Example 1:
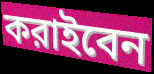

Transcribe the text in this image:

করাইবেন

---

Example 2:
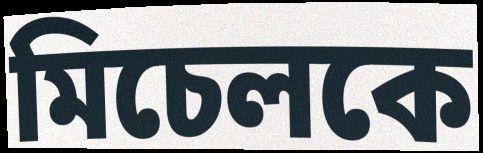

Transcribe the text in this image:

মিচেলকে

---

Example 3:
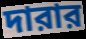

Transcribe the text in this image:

দারার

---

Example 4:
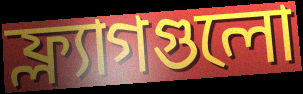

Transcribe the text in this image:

ফ্ল্যাগগুলো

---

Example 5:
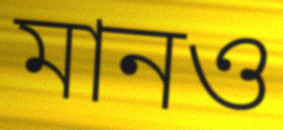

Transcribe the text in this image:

মানও